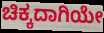
ಚಿಕ್ಕದಾಗಿಯೇ